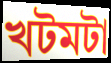
খটমটা